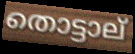
തൊട്ടാല്